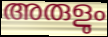
അരുളും